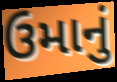
ઉમાનું